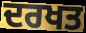
ਦਰਖਤ